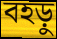
বহড়ু